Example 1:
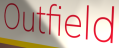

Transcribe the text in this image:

Outfield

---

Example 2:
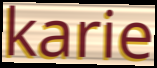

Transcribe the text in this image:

karie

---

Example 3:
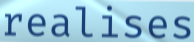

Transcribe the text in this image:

realises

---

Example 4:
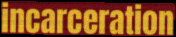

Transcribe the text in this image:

incarceration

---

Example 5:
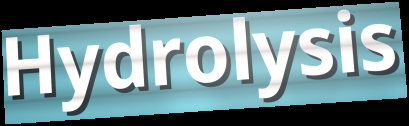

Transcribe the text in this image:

Hydrolysis